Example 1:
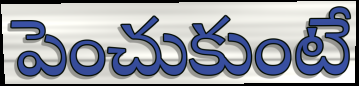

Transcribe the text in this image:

పెంచుకుంటే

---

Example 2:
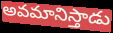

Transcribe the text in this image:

అవమానిస్తాడు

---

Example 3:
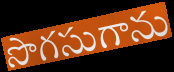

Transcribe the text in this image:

సొగసుగాను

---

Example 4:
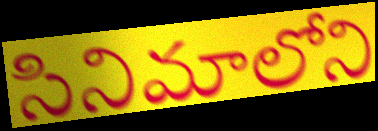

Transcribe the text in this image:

సినిమాలోని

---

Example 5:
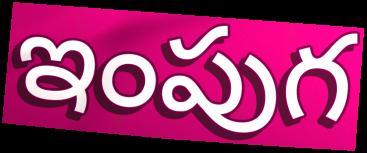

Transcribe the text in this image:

ఇంపుగ